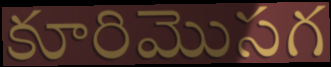
కూరిమొసగ